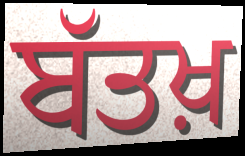
ਬੱਤਖ਼